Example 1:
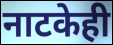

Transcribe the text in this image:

नाटकेही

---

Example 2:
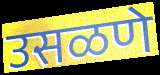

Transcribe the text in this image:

उसळणे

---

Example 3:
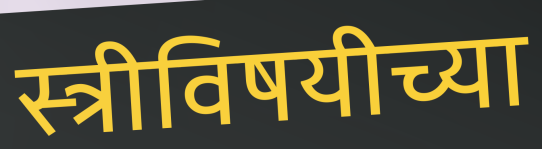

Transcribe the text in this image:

स्त्रीविषयीच्या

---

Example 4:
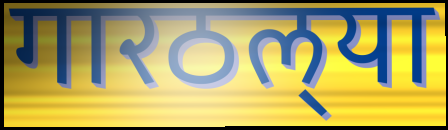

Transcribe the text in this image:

गारठल्या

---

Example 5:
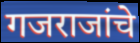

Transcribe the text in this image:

गजराजांचे